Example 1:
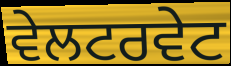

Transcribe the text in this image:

ਵੇਲਟਰਵੇਟ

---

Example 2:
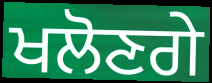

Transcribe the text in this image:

ਖਲੋਣਗੇ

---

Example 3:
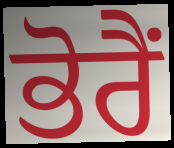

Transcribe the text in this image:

ਭੋਰੈਂ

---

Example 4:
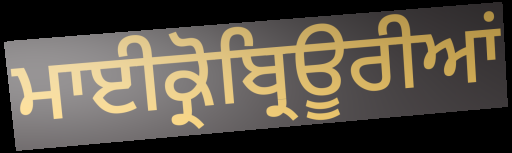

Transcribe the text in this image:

ਮਾਈਕ੍ਰੋਬ੍ਰਿਊਰੀਆਂ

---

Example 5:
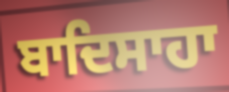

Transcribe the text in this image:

ਬਾਦਿਸਾਹਾ